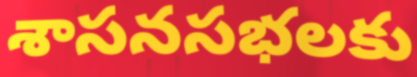
శాసనసభలకు